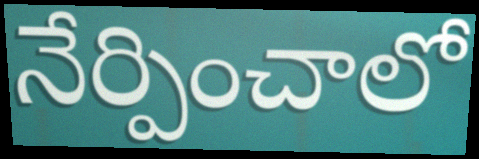
నేర్పించాలో